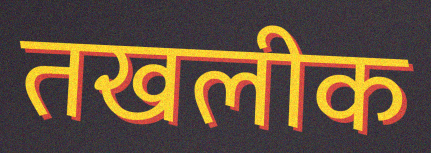
तखलीक